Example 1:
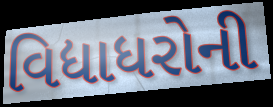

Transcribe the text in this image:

વિદ્યાધરોની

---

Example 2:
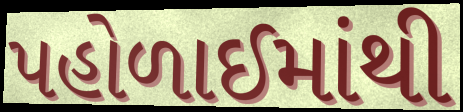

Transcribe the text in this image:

પહોળાઈમાંથી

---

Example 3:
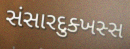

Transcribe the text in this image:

સંસારદુક્ખસ્સ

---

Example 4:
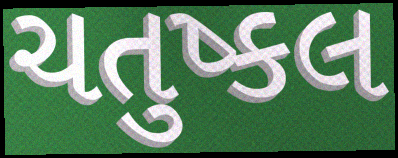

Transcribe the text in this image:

ચતુષ્કલ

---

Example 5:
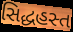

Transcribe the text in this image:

સિદ્ધહસ્ત